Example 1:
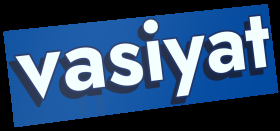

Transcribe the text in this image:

vasiyat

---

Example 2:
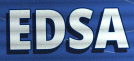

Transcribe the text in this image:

EDSA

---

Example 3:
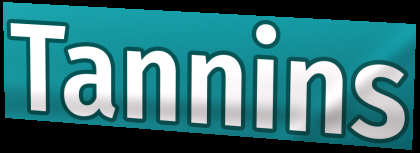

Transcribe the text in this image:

Tannins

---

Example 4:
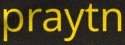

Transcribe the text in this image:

praytn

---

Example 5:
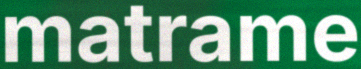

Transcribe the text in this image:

matrame